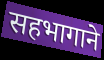
सहभागाने